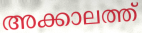
അക്കാലത്ത്